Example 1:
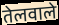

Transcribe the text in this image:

तेलवाले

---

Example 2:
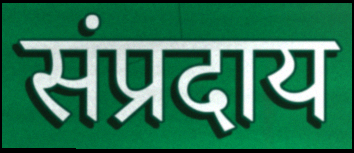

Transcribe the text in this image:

संप्रदाय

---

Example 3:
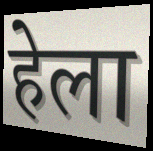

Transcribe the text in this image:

हेला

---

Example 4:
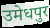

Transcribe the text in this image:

उमेधपुर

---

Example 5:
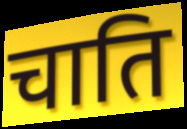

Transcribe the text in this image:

चाति